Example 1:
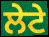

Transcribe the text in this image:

ਲੇਟੇ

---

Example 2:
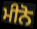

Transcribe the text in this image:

ਮੀਨੋ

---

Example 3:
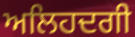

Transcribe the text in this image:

ਅਲਿਹਦਗੀ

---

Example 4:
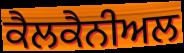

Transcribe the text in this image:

ਕੈਲਕੈਨੀਅਲ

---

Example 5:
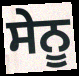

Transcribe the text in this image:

ਸੇਨੂ